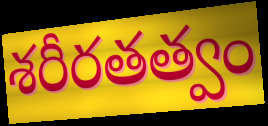
శరీరతత్వం